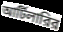
আর্টিলারির